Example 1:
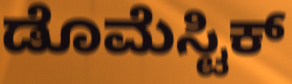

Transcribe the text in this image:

ಡೊಮೆಸ್ಟಿಕ್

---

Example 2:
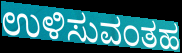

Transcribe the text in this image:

ಉಳಿಸುವಂತಹ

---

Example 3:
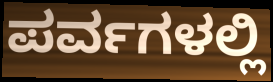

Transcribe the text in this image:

ಪರ್ವಗಳಲ್ಲಿ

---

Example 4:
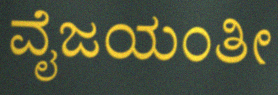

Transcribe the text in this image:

ವೈಜಯಂತೀ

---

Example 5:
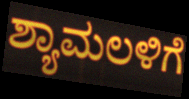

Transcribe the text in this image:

ಶ್ಯಾಮಲಳಿಗೆ